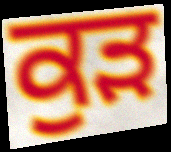
ਕੁੜ